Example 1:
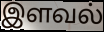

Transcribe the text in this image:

இளவல்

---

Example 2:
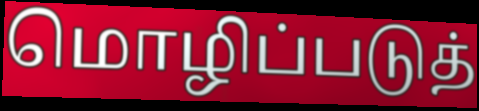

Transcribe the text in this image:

மொழிப்படுத்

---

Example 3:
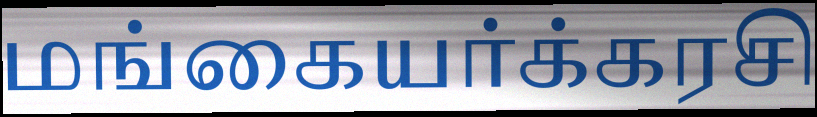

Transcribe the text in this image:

மங்கையர்க்கரசி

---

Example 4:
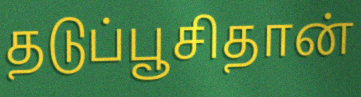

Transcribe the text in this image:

தடுப்பூசிதான்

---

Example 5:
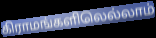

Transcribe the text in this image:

கிராமங்களிலெல்லாம்